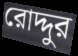
রোদ্দুর